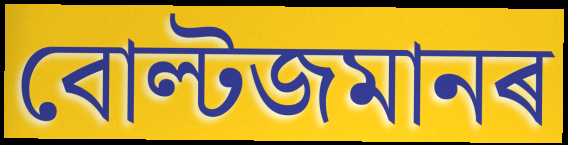
বোল্টজমানৰ